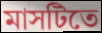
মাসটিতে